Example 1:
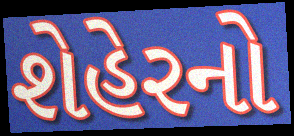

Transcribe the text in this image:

શેહેરનો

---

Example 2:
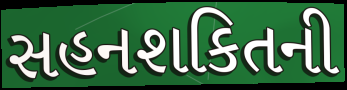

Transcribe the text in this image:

સહનશકિતની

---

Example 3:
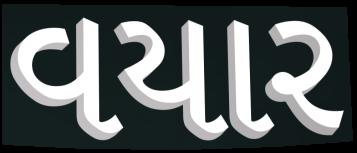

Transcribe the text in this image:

વયાર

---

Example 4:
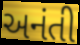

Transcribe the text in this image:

અનંતી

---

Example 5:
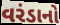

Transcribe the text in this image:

વરંડાનો